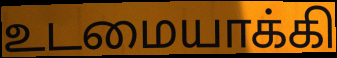
உடமையாக்கி